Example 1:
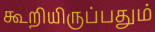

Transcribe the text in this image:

கூறியிருப்பதும்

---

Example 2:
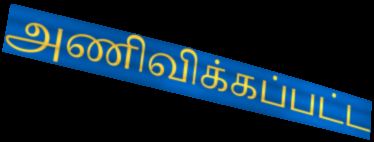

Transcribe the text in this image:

அணிவிக்கப்பட்ட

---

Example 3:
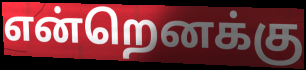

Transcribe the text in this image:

என்றெனக்கு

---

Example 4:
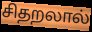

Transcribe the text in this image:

சிதறலால்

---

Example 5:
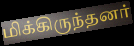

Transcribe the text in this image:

மிக்கிருந்தனர்